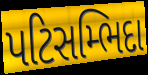
પટિસમ્ભિદા